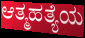
ಆತ್ಮಹತ್ಯೆಯ